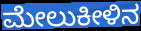
ಮೇಲುಕೀಳಿನ